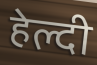
हेल्‍दी